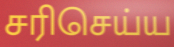
சரிசெய்ய